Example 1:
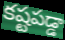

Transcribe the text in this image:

కష్టపడ్డా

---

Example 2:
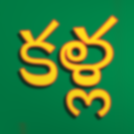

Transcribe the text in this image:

కళ్ల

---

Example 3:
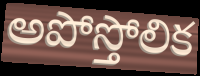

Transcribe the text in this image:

అపోస్తోలిక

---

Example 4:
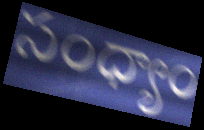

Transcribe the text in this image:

సంధ్యాం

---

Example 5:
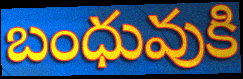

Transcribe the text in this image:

బంధువుకి